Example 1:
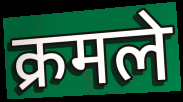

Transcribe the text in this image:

क्रमले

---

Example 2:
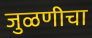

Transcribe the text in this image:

जुळणीचा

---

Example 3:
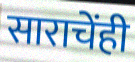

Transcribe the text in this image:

साराचेंही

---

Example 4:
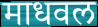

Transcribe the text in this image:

माधवल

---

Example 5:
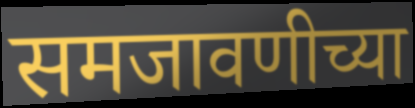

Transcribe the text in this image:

समजावणीच्या